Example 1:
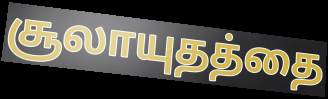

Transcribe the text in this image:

சூலாயுதத்தை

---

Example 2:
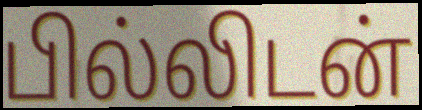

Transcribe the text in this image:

பில்லிடன்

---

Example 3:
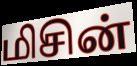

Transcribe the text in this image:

மிசின்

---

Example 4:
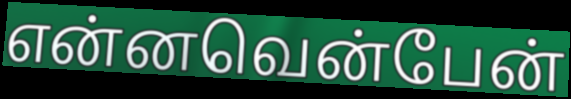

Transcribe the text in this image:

என்னவென்பேன்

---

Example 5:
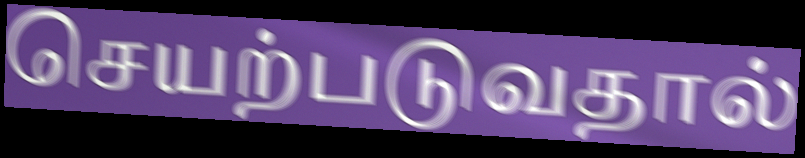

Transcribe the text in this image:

செயற்படுவதால்